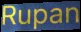
Rupan